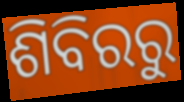
ଶିବିରରୁ